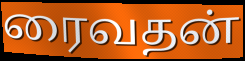
ரைவதன்